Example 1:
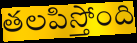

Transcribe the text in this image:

తలపిస్తోంది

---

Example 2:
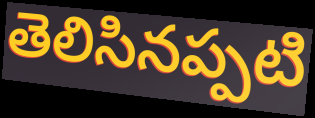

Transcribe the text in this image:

తెలిసినప్పటి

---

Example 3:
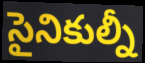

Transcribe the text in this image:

సైనికుల్నీ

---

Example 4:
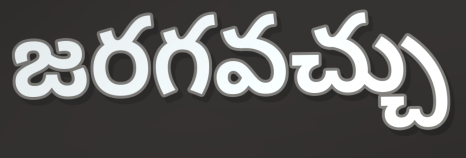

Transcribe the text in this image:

జరగవచ్చు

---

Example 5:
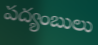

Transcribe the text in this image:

పద్యంబులు